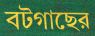
বটগাছের